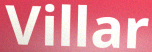
Villar